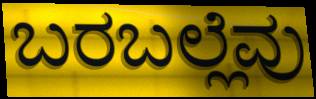
ಬರಬಲ್ಲೆವು